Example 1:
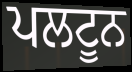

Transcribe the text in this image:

ਪਲਟੂਨ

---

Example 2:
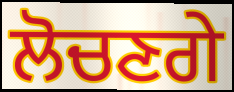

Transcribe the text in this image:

ਲੋਚਣਗੇ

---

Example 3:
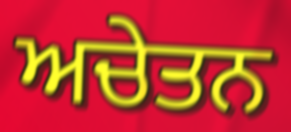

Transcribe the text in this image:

ਅਚੇਤਨ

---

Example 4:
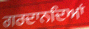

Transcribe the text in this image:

ਗਰਦਾਨਦਿਆਂ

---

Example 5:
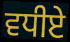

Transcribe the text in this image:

ਵਧੀਏ